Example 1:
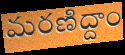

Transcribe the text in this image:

మరణిద్దాం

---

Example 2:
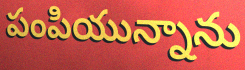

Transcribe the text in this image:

పంపియున్నాను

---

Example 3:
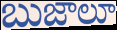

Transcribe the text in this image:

బుజాలూ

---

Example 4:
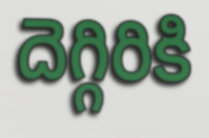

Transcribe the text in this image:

దెగ్గిరికి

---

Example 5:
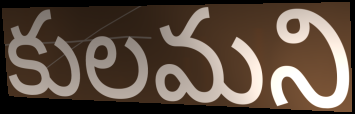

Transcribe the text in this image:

కులమని